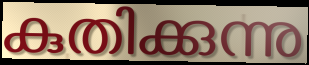
കുതിക്കുന്നു